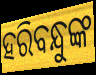
ହରିବନ୍ଧୁଙ୍କ